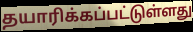
தயாரிக்கப்பட்டுள்ளது